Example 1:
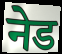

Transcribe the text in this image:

नेड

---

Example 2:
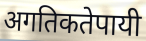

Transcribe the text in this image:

अगतिकतेपायी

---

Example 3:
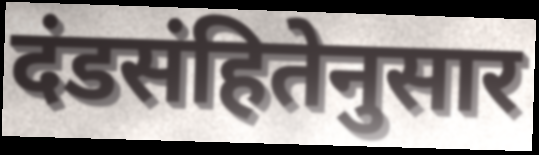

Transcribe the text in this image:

दंडसंहितेनुसार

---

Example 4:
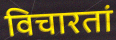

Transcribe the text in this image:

विचारतां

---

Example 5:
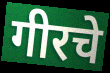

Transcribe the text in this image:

गीरचे